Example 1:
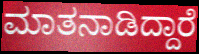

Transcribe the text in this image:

ಮಾತನಾಡಿದ್ದಾರೆ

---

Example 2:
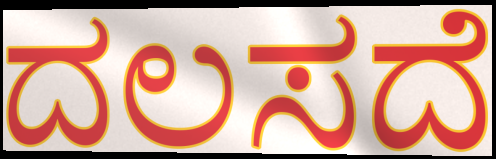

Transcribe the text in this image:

ದಲಸದೆ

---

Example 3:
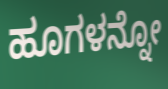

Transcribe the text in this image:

ಹೂಗಳನ್ನೋ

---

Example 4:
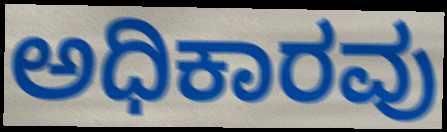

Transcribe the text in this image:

ಅಧಿಕಾರವು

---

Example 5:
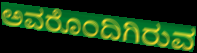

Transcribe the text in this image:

ಅವರೊಂದಿಗಿರುವ